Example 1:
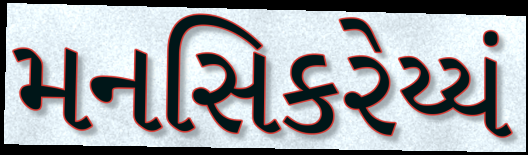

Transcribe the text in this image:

મનસિકરેય્યં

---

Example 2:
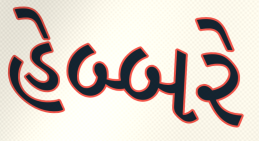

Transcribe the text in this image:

હેબ્બરે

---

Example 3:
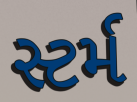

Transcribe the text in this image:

સ્ટર્મ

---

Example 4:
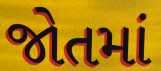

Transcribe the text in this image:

જોતમાં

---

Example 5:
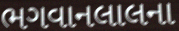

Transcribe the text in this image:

ભગવાનલાલના